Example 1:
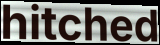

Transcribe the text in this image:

hitched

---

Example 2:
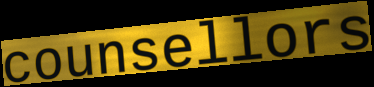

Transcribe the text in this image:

counsellors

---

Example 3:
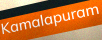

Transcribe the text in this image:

Kamalapuram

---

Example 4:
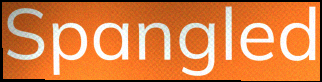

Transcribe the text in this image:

Spangled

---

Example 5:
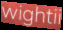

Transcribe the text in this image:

wightii